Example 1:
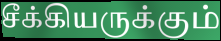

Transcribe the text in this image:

சீக்கியருக்கும்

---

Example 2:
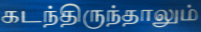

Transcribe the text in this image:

கடந்திருந்தாலும்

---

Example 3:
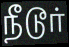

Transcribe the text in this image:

நீடூர்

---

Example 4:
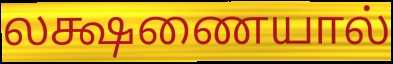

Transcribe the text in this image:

லக்ஷணையால்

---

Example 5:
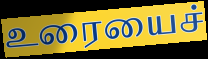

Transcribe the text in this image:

உரையைச்